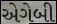
એગેબી